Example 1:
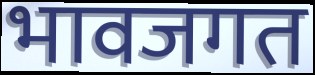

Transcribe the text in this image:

भावजगत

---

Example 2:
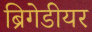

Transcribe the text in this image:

ब्रिगेडीयर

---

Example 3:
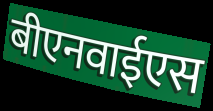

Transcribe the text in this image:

बीएनवाईएस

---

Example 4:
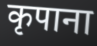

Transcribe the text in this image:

कृपाना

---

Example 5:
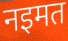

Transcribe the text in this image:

नइमत